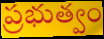
ప్రభుత్వం